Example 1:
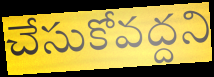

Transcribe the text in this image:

చేసుకోవద్దని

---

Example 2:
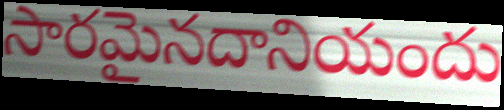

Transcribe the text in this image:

సారమైనదానియందు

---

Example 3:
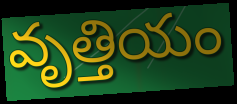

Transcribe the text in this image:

వృత్తియం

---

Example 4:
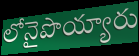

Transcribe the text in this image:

లోనైపొయ్యారు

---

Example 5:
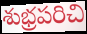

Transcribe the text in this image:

శుభ్రపరిచి